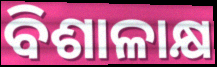
ବିଶାଳାକ୍ଷ